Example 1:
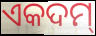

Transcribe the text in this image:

ଏକଦମ୍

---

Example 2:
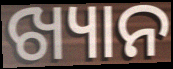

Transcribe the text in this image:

ଖ୍ୟାନ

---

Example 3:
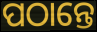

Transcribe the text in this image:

ପଠାନ୍ତେ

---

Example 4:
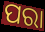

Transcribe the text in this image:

ପରା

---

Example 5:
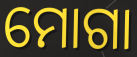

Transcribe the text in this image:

ମୋଗା